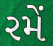
રમેં